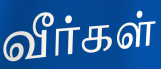
வீர்கள்